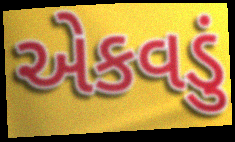
એકવડું